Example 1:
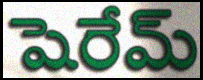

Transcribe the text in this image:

షెరేమ్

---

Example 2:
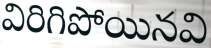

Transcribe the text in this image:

విరిగిపోయినవి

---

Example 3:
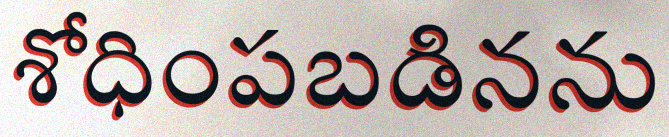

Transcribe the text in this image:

శోధింపబడినను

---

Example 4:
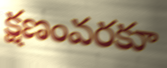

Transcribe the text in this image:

క్షణంవరకూ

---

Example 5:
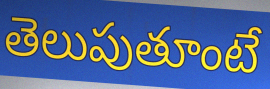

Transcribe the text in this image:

తెలుపుతూంటే